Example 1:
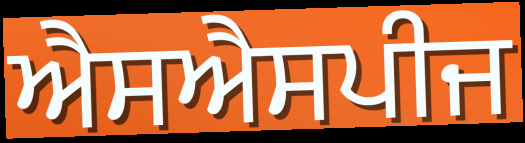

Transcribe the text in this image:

ਐਸਐਸਪੀਜ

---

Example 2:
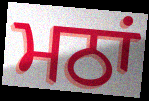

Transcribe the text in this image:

ਮਠਾਂ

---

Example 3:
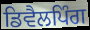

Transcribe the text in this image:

ਡਿਵੈਲਪਿੰਗ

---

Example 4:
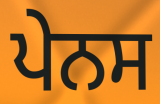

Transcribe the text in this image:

ਪੇਨਸ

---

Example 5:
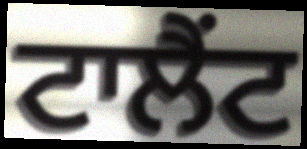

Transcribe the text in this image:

ਟਾਲੈਂਟ